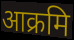
आक्रमि